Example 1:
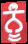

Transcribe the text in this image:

ਨੂਂੰ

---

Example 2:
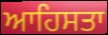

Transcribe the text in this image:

ਆਹਿਸਤਾ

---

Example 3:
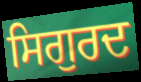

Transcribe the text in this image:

ਸਿਗੁਰਦ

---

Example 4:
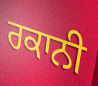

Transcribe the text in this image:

ਰਕਾਨੀ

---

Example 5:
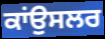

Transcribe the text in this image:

ਕਾਂਉਸਲਰ